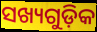
ସଖ୍ୟଗୁଡ଼ିକ